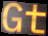
Gt